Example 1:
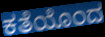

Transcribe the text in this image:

ಕತೆಯೊಂದ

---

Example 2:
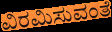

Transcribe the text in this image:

ವಿರಮಿಸುವಂತೆ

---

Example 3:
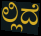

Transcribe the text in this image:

ಲ್ಲಿದೆ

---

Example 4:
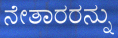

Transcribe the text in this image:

ನೇತಾರರನ್ನು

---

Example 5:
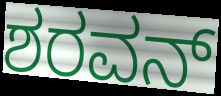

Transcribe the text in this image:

ಶರವನ್